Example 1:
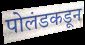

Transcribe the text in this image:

पोलंडकडून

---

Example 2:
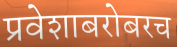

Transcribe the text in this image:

प्रवेशाबरोबरच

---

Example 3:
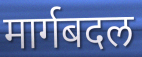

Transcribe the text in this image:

मार्गबदल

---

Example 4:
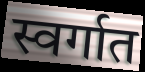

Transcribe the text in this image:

स्वर्गात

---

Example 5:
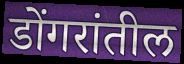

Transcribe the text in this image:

डोंगरांतील